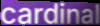
cardinal